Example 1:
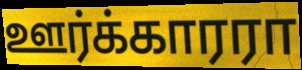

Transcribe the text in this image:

ஊர்க்காரரா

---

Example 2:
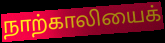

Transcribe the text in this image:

நாற்காலியைக்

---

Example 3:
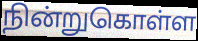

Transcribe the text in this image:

நின்றுகொள்ள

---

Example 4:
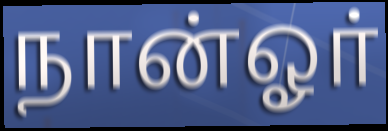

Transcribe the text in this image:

நான்ஓர்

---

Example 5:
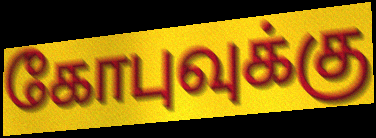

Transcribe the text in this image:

கோபுவுக்கு